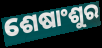
ଶେଷାଂଶୁର